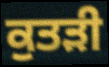
ਕੁਤੜੀ